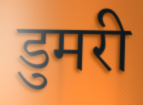
डुमरी